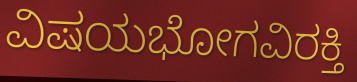
ವಿಷಯಭೋಗವಿರಕ್ತಿ